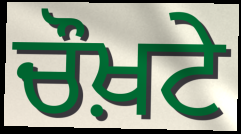
ਚੌਖ਼ਟੇ